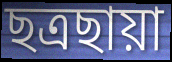
ছত্রছায়া